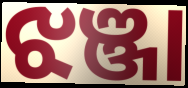
ଝଞ୍ଜା